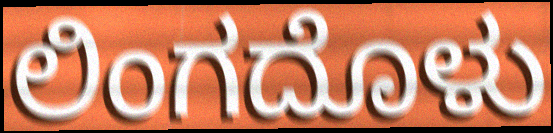
ಲಿಂಗದೊಳು